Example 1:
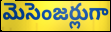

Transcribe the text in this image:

మెసెంజర్లుగా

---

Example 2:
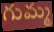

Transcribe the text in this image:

గుమ్మ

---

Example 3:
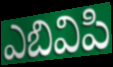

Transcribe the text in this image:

ఎబివిపి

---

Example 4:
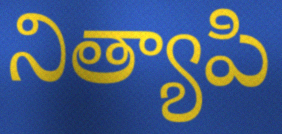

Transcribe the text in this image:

నిత్యాపి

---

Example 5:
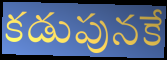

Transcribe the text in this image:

కడుపునకే